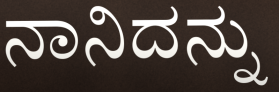
ನಾನಿದನ್ನು